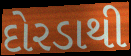
દોરડાથી